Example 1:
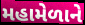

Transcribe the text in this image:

મહામેળાને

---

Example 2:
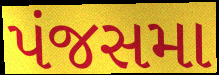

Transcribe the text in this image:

પંજસમા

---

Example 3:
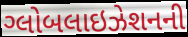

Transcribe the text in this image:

ગ્લોબલાઇઝેશનની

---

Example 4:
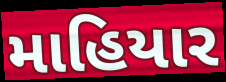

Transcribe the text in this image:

માહિયાર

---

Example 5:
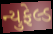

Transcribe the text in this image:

ન્યુફેલ્ડ